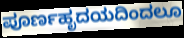
ಪೂರ್ಣಹೃದಯದಿಂದಲೂ